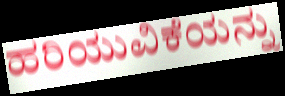
ಹರಿಯುವಿಕೆಯನ್ನು